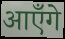
आएँगे